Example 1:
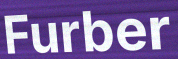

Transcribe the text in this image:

Furber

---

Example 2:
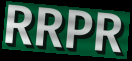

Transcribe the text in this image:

RRPR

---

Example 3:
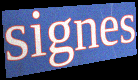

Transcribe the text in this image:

signes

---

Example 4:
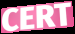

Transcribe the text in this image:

CERT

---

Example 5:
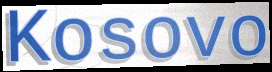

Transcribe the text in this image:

Kosovo